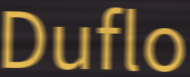
Duflo